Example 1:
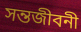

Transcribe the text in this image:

সন্তজীবনী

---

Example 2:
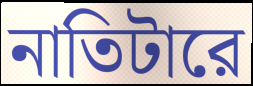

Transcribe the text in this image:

নাতিটারে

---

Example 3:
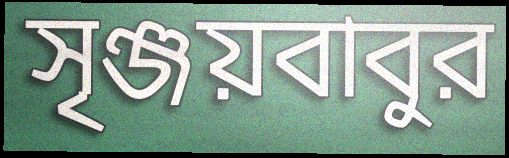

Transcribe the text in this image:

সৃঞ্জয়বাবুর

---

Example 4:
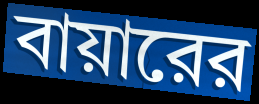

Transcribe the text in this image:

বায়ারের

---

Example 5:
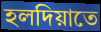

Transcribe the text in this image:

হলদিয়াতে